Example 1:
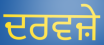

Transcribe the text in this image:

ਦਰਵਜ਼ੇ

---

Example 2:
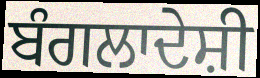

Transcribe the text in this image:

ਬੰਗਲਾਦੇਸ਼ੀ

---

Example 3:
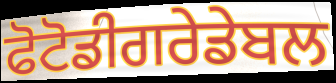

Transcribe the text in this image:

ਫੋਟੋਡੀਗਰੇਡੇਬਲ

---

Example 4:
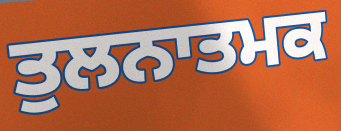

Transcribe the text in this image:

ਤੁਲਨਾਤਮਕ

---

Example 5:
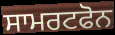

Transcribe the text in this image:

ਸਾਮਰਟਫੋਨ